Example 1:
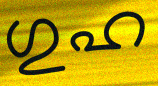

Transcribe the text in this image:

ഗുഹ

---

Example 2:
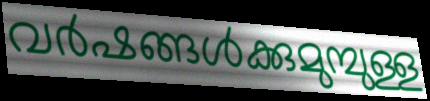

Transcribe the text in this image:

വർഷങ്ങൾക്കുമുമ്പുള്ള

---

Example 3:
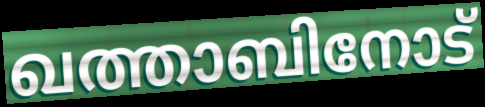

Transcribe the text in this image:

ഖത്താബിനോട്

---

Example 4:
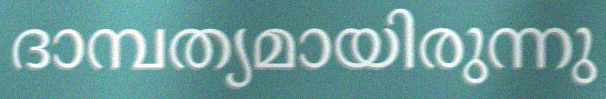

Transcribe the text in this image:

ദാമ്പത്യമായിരുന്നു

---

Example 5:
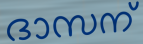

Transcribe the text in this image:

ദാസന്